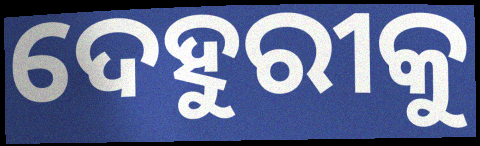
ଦେହୁରୀକୁ